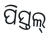
ପିସ୍ତଲ୍